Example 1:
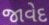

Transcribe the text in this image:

જાવેદ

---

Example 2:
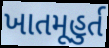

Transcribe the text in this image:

ખાતમૂહુર્ત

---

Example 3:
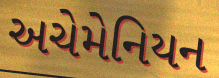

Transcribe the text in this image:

અચેમેનિયન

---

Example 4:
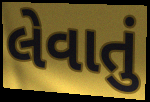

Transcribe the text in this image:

લેવાતું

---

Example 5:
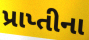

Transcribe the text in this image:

પ્રાપ્તીના